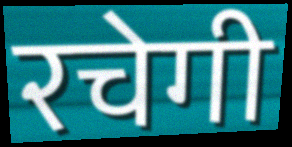
रचेगी